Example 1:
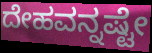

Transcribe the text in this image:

ದೇಹವನ್ನಷ್ಟೇ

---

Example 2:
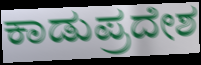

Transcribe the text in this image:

ಕಾಡುಪ್ರದೇಶ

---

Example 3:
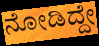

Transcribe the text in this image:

ನೋಡಿದ್ದೇ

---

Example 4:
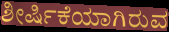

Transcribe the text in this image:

ಶೀರ್ಷಿಕೆಯಾಗಿರುವ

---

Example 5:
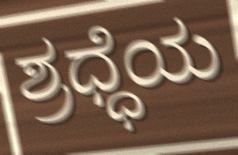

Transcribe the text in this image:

ಶ್ರಧ್ಧೆಯ